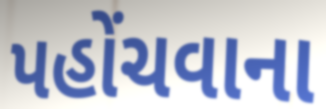
પહોંચવાના